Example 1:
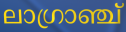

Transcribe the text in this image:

ലാഗ്രാഞ്ച്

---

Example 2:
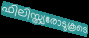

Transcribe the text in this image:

ഫിലിസ്ത്യരോടുകൂടെ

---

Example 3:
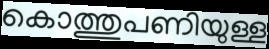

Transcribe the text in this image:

കൊത്തുപണിയുള്ള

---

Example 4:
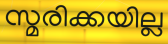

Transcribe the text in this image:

സ്മരിക്കയില്ല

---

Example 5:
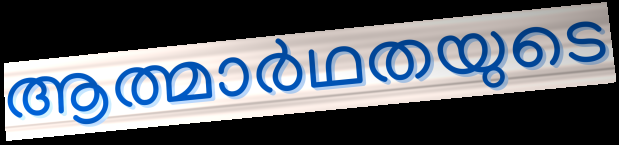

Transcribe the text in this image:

ആത്മാർഥതയുടെ